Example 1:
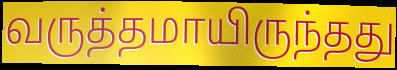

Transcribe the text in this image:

வருத்தமாயிருந்தது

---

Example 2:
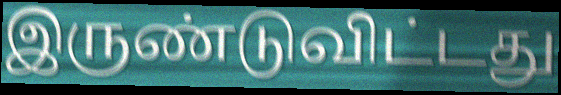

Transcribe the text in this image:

இருண்டுவிட்டது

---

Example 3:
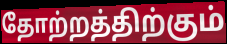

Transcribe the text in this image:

தோற்றத்திற்கும்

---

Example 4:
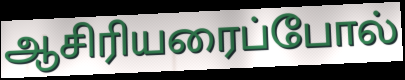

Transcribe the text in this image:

ஆசிரியரைப்போல்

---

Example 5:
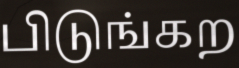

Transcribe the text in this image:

பிடுங்கற